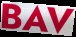
BAV